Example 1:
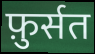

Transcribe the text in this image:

फ़ुर्सत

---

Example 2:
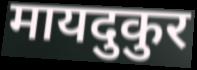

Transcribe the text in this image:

मायदुकुर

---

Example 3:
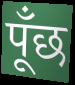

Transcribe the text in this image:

पूँछ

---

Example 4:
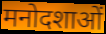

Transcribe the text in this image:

मनोदशाओं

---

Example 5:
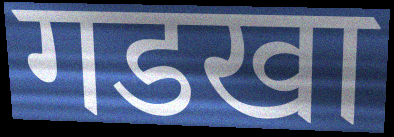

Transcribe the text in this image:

गडखा